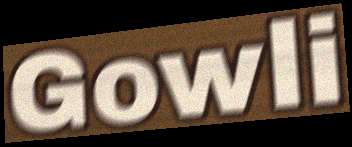
Gowli